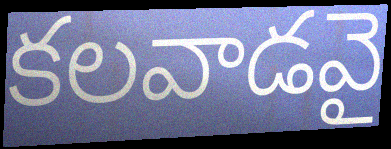
కలవాడవై